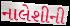
નાલેશીની